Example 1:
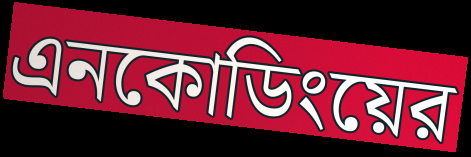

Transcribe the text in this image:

এনকোডিংয়ের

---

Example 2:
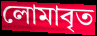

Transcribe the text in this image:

লোমাবৃত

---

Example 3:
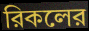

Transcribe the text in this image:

রিকলের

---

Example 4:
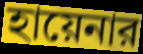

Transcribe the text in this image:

হায়েনার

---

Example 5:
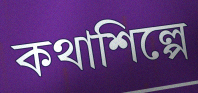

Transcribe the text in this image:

কথাশিল্পে